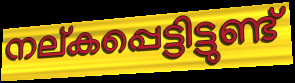
നല്കപ്പെട്ടിട്ടുണ്ട്